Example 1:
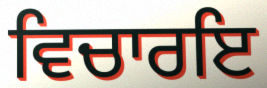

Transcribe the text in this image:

ਵਿਚਾਰਇ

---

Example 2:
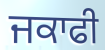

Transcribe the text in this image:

ਜਕਾਫੀ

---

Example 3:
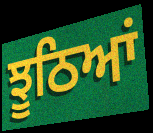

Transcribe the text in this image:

ਝੂਠਿਆਂ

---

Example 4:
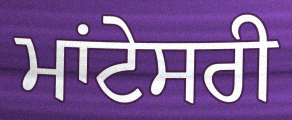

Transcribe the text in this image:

ਮਾਂਟੇਸਰੀ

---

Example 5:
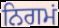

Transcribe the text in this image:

ਨਿਗਮਂ